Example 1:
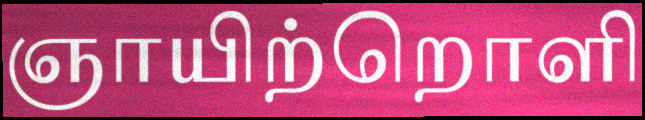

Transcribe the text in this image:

ஞாயிற்றொளி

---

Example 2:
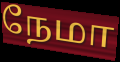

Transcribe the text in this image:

நேமா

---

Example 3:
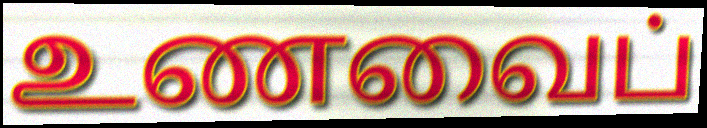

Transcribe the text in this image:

உணவைப்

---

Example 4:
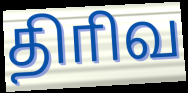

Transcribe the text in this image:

திரிவ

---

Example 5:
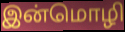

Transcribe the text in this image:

இன்மொழி